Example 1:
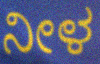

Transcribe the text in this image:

ನೀಳ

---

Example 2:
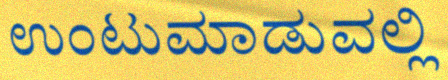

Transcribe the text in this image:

ಉಂಟುಮಾಡುವಲ್ಲಿ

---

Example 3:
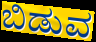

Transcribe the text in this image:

ಬಿಡುವ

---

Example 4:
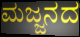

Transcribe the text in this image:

ಮಜ್ಜನದ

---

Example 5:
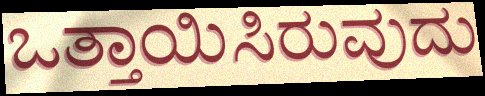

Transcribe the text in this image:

ಒತ್ತಾಯಿಸಿರುವುದು